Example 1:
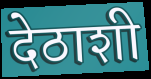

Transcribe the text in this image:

देठाशी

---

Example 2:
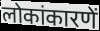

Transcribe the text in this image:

लोकांकारणें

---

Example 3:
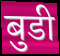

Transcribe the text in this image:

बुडी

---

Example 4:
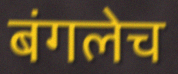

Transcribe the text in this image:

बंगलेच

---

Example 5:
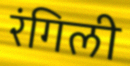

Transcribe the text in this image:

रंगिली